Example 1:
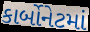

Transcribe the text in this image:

કાર્બોનેટમાં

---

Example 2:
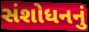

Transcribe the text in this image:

સંશોધનનું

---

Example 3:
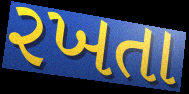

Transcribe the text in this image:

રખતા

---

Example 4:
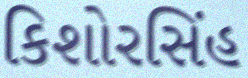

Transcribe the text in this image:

કિશોરસિંહ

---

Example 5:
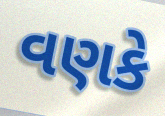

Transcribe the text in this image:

વણકે